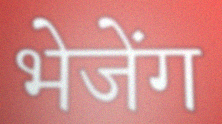
भेजेंग